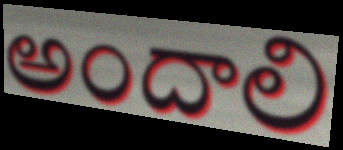
అందాలి